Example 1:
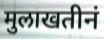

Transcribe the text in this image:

मुलाखतीनं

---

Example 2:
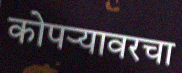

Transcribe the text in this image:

कोपऱ्यावरचा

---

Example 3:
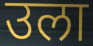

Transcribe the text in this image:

उला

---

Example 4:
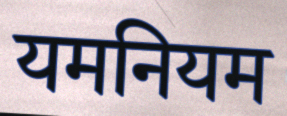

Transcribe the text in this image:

यमनियम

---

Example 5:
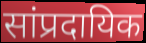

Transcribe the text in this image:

सांप्रदायिक